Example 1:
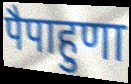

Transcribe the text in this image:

पैपाहुणा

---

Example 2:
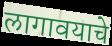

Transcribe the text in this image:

लागावयाचे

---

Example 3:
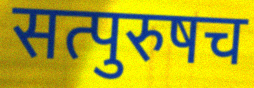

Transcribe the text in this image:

सत्पुरुषच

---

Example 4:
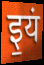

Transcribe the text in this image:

इ॒यं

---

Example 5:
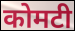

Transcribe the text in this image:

कोमटी